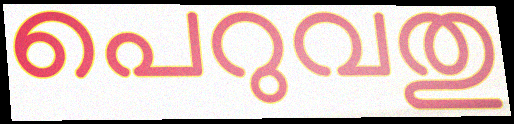
പെറുവതു